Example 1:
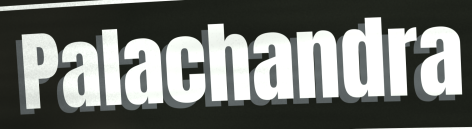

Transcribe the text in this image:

Palachandra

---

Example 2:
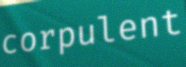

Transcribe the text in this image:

corpulent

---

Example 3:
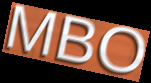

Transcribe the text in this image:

MBO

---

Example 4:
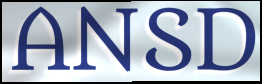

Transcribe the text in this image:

ANSD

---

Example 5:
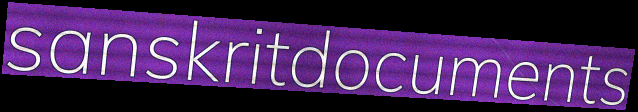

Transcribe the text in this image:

sanskritdocuments